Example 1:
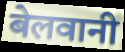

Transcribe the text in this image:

बेलवानी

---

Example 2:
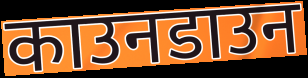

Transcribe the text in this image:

काउनडाउन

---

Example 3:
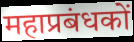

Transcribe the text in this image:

महाप्रबंधकों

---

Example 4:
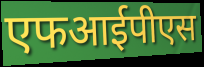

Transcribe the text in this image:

एफआईपीएस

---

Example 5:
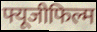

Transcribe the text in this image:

फ्यूजीफिल्म